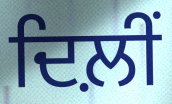
ਦਿਲ਼ੀਂ